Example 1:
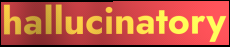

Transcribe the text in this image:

hallucinatory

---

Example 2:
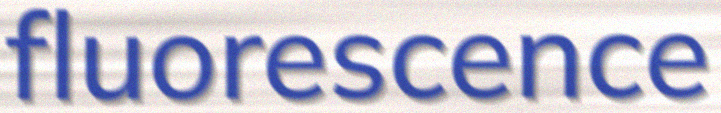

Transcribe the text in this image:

fluorescence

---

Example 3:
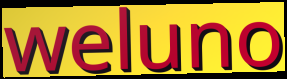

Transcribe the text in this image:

weluno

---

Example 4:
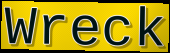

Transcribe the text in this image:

Wreck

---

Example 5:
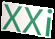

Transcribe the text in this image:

XXi